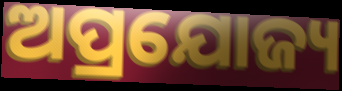
ଅପ୍ରଯୋଜ୍ୟ